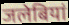
जलेबियां